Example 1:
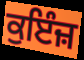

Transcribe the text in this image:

ਕੁਇੰਜ਼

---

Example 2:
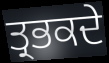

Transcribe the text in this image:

ਤ੍ਰਭਕਦੇ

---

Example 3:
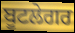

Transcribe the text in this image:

ਬੂਟਲੇਗਰ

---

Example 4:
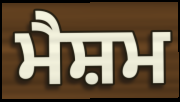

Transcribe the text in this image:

ਮੈਸ਼ਮ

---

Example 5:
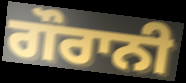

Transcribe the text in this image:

ਗੌਰਾਨੀ